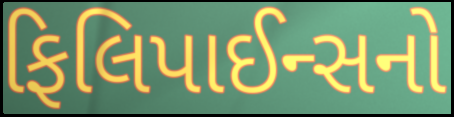
ફિલિપાઈન્સનો